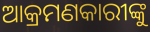
ଆକ୍ରମଣକାରୀଙ୍କୁ